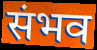
संभव